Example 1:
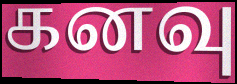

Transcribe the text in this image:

கனவு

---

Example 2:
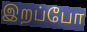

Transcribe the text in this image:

இறப்போ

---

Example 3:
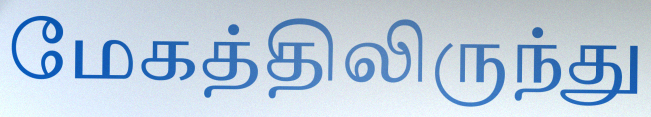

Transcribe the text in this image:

மேகத்திலிருந்து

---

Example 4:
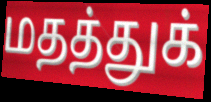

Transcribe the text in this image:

மதத்துக்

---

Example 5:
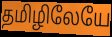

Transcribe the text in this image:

தமிழிலேயே